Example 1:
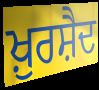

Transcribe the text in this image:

ਖ਼ੁਰਸ਼ੈਦ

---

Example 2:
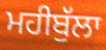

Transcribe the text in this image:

ਮਹੀਬੁੱਲਾ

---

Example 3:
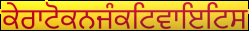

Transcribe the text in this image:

ਕੇਰਾਟੋਕਨਜੰਕਟਿਵਾਇਟਿਸ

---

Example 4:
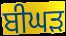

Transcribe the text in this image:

ਬੀਘੜ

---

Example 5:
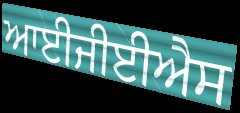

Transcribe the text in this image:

ਆਈਜੀਈਐਸ